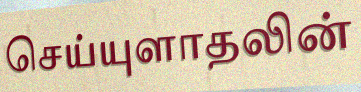
செய்யுளாதலின்